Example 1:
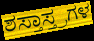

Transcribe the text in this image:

ಶಸ್ತಾಸ್ತ್ರಗಳ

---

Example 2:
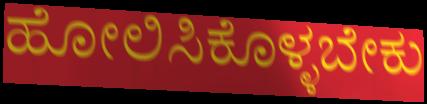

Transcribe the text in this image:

ಹೋಲಿಸಿಕೊಳ್ಳಬೇಕು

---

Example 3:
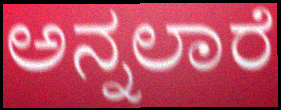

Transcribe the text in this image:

ಅನ್ನಲಾರೆ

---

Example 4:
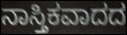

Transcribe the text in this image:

ನಾಸ್ತಿಕವಾದದ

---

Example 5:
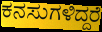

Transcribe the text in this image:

ಕನಸುಗಳಿದ್ದರೆ